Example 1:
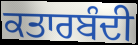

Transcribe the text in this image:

ਕਤਾਰਬੰਦੀ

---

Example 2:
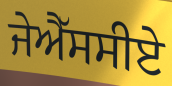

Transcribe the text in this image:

ਜੇਐੱਸਸੀਏ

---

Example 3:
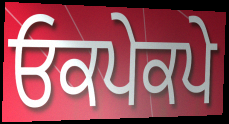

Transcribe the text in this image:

ਓਕਪੇਕਪੇ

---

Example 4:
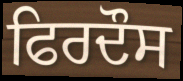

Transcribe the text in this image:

ਫਿਰਦੌਸ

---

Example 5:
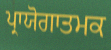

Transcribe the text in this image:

ਪ੍ਰਾਯੋਗਾਤਮਕ